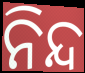
ନିନ୍ଦ